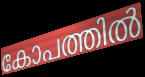
കോപത്തിൽ